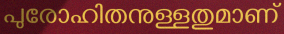
പുരോഹിതനുള്ളതുമാണ്